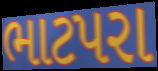
ભાટપરા